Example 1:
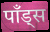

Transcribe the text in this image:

पाँड्स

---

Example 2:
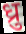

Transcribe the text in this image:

ध्रु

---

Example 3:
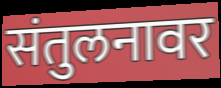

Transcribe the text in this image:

संतुलनावर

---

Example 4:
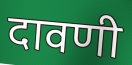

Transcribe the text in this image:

दावणी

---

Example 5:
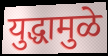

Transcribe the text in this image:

युद्धामुळे